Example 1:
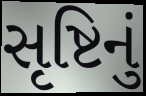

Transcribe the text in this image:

સૃષ્ટિનું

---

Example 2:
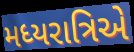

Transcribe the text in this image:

મધ્યરાત્રિએ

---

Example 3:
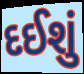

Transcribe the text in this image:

દઈશું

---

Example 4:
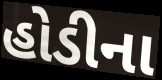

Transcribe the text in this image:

હોડીના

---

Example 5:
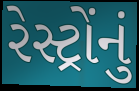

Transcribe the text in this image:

રેસ્ટ્રોંનું